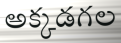
అక్కడగల